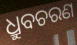
ଧ୍ରୁବଚରଣ